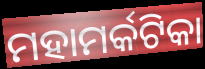
ମହାମର୍କଟିକା